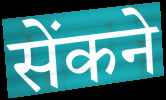
सेंकने